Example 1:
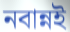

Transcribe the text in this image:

নবান্নই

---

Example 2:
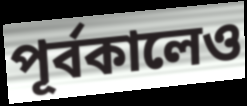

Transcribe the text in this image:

পূর্বকালেও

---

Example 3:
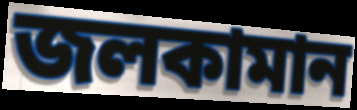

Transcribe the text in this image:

জলকামান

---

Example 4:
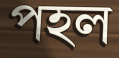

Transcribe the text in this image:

পহল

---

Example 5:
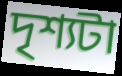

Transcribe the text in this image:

দৃশ্যটা